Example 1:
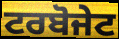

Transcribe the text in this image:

ਟਰਬੋਜੇਟ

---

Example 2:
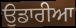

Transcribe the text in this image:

ਉਡਾਰੀਆ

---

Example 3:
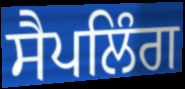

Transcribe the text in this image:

ਸੈਪਲਿੰਗ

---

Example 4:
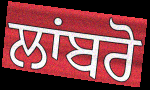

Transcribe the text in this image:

ਲਾਂਬਰੋ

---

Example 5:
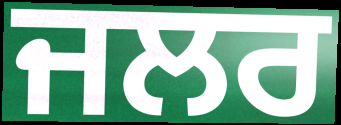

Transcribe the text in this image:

ਜਲਰ